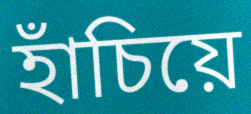
হাঁচিয়ে